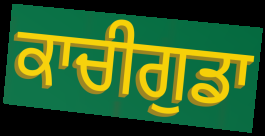
ਕਾਚੀਗੁਡਾ